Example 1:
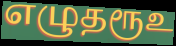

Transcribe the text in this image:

எழுதரூஉ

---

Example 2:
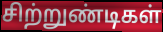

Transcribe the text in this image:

சிற்றுண்டிகள்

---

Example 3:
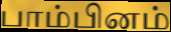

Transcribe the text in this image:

பாம்பினம்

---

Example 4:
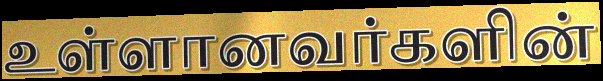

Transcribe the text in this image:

உள்ளானவர்களின்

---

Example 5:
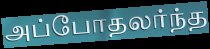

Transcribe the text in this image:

அப்போதலர்ந்த